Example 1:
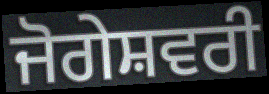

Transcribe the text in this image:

ਜੋਗੇਸ਼ਵਰੀ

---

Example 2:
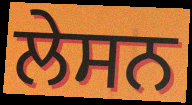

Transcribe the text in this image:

ਲੇਸਨ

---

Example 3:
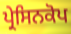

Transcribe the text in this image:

ਪ੍ਰੇਸਿਨਕੋਪ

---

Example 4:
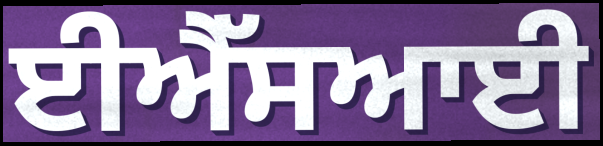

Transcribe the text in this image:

ਈਐੱਸਆਈ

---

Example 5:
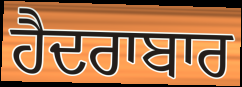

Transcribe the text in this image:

ਹੈਦਰਾਬਾਰ